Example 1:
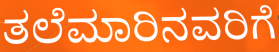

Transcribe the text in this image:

ತಲೆಮಾರಿನವರಿಗೆ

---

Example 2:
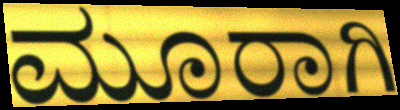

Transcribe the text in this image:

ಮೂರಾಗಿ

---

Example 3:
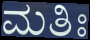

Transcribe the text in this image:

ಮತಿಃ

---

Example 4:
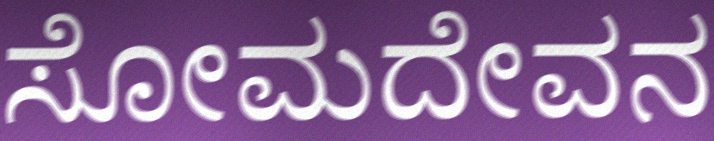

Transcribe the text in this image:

ಸೋಮದೇವನ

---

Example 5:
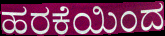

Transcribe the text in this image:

ಹರಕೆಯಿಂದ